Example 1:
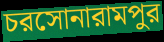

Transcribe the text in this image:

চরসোনারামপুর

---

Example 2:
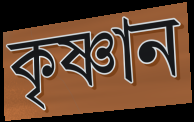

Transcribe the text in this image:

কৃষ্ণান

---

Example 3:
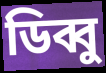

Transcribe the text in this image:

ডিব্বু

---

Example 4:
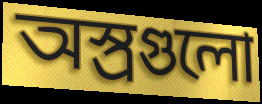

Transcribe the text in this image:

অস্ত্রগুলো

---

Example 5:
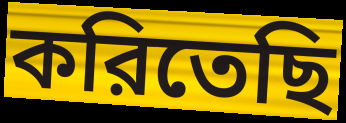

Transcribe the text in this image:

করিতেছি